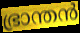
ഭ്രാന്തൻ